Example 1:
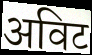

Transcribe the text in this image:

अविट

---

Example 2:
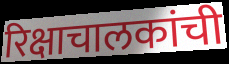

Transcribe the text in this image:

रिक्षाचालकांची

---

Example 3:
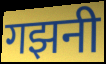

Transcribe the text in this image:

गझनी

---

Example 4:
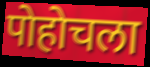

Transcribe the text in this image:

पोहोचला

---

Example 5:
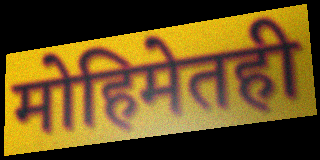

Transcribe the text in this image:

मोहिमेतही